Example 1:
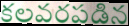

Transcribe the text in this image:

కలవరపడిన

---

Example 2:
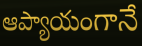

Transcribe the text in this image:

ఆప్యాయంగానే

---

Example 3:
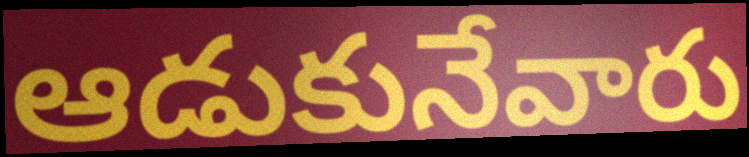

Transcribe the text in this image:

ఆడుకునేవారు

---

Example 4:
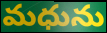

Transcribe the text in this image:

మధును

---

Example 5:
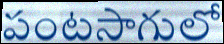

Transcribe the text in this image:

పంటసాగులో